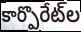
కార్పొరేట్‌ల